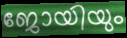
ജോയിയും